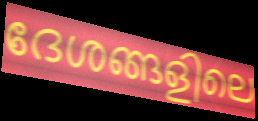
ദേശങ്ങളിലെ